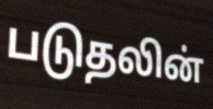
படுதலின்